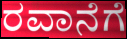
ರವಾನೆಗೆ